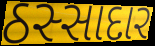
ઠસ્સાદાર